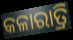
କଳାରାତ୍ରି